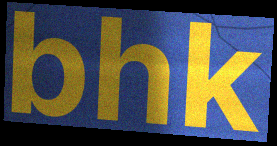
bhk